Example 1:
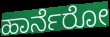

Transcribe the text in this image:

ಹಾರ್ನೆರೋ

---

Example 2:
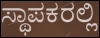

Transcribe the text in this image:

ಸ್ಥಾಪಕರಲ್ಲಿ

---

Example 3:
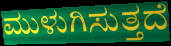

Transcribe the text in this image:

ಮುಳುಗಿಸುತ್ತದೆ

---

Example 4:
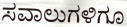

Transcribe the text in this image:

ಸವಾಲುಗಳಿಗೂ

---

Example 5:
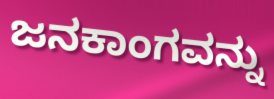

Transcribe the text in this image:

ಜನಕಾಂಗವನ್ನು